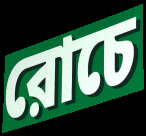
রোচে